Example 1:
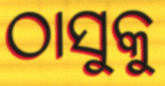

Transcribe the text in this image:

ଠାସୁକୁ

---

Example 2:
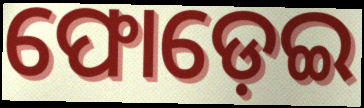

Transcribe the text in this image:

ଫୋଡ଼େଇ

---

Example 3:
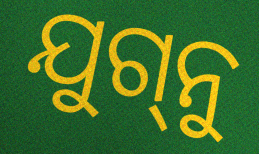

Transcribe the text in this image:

ଯୁଗ୍‌ନୁ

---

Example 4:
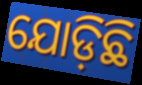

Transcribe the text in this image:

ଯୋଡ଼ିଛି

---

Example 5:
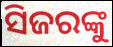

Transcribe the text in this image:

ସିଜରଙ୍କୁ